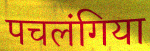
पचलंगिया